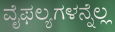
ವೈಫಲ್ಯಗಳನ್ನೆಲ್ಲ